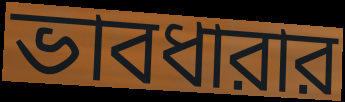
ভাবধারার